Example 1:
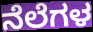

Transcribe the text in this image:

ನೆಲೆಗಳ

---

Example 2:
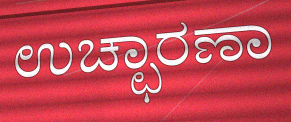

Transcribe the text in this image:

ಉಚ್ಛಾರಣಾ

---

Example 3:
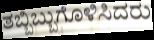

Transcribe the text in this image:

ತಬ್ಬಿಬ್ಬುಗೊಳಿಸಿದರು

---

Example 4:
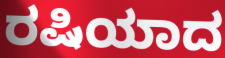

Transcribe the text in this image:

ರಷಿಯಾದ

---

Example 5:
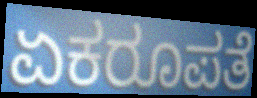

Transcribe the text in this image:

ಏಕರೂಪತೆ